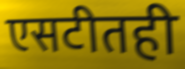
एसटीतही